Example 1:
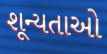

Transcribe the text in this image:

શૂન્યતાઓ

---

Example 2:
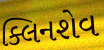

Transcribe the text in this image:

ક્લિનશેવ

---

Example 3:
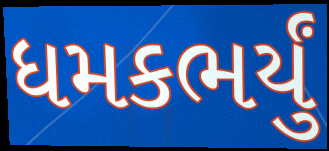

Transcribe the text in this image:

ધમકભર્યું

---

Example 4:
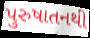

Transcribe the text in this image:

પુરુષાતનથી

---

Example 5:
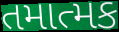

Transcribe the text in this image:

તમાત્મક